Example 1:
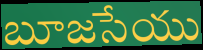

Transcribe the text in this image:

బూజసేయు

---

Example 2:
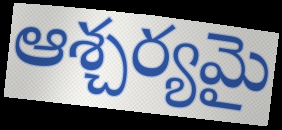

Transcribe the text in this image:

ఆశ్చర్యమై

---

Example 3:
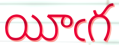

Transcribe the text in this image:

యీఁగ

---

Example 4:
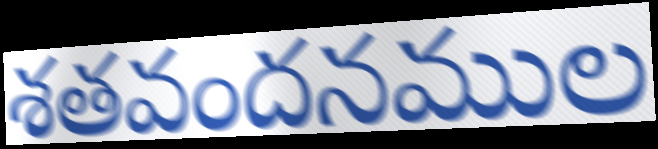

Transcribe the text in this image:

శతవందనముల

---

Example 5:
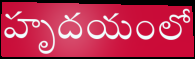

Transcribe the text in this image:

హృదయంలో